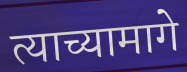
त्याच्यामागे